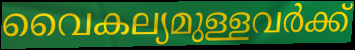
വൈകല്യമുള്ളവർക്ക്